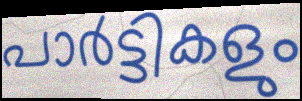
പാർട്ടികളും